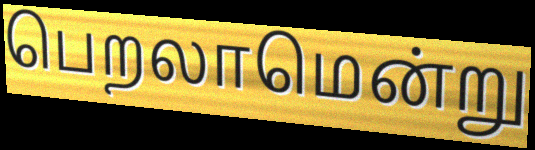
பெறலாமென்று